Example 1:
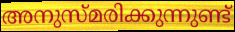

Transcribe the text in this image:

അനുസ്മരിക്കുന്നുണ്ട്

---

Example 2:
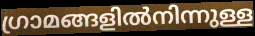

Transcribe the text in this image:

ഗ്രാമങ്ങളിൽനിന്നുള്ള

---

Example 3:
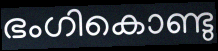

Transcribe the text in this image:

ഭംഗികൊണ്ടു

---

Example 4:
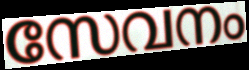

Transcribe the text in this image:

സേവനം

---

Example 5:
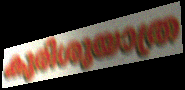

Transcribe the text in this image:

കുരിശുയാത്ര